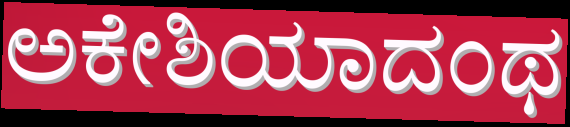
ಅಕೇಶಿಯಾದಂಥ